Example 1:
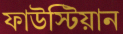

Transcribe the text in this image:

ফাউস্টিয়ান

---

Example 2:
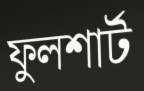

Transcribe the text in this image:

ফুলশার্ট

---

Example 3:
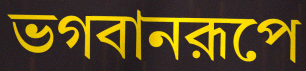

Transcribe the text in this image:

ভগবানরূপে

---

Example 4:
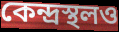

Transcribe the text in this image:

কেন্দ্রস্থলও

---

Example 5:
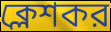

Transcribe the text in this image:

ক্লেশকর